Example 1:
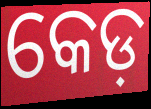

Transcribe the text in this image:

କେଡ଼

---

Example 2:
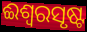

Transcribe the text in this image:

ଈଶ୍ୱରସୃଷ୍ଟ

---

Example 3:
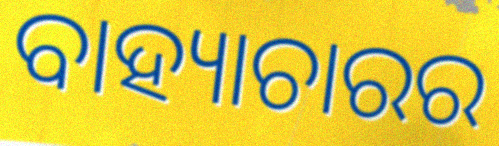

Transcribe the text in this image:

ବାହ୍ୟାଚାରର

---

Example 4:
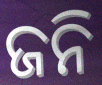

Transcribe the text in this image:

ଜନି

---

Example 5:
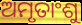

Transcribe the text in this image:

ଅମୃତାଂଶୁ